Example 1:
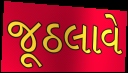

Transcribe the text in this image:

જૂઠલાવે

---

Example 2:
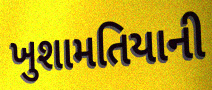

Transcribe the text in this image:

ખુશામતિયાની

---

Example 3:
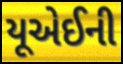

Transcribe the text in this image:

યૂએઈની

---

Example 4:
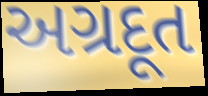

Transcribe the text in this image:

અગ્રદૂત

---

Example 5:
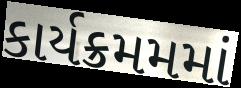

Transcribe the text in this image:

કાર્યક્રમમમાં